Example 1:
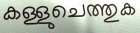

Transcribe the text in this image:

കള്ളുചെത്തുക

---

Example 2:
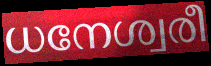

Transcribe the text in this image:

ധനേശ്വരീ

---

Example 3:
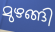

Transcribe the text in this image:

മുഴങ്ങി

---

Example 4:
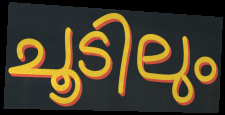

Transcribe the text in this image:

ചൂടിലും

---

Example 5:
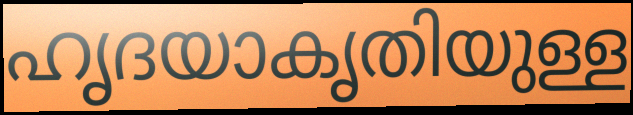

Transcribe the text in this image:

ഹൃദയാകൃതിയുള്ള